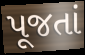
પૂજતાં